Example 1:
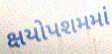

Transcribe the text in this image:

ક્ષયોપશમમાં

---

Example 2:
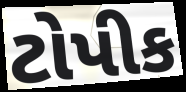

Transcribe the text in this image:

ટોપીક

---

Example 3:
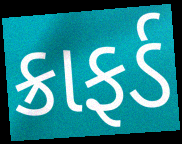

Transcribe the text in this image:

ક્રાફર્ડ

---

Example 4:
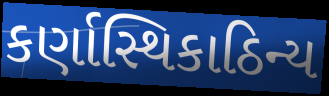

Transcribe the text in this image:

કર્ણાસ્થિકાઠિન્ય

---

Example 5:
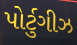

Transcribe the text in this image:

પોર્ટુગીઝ